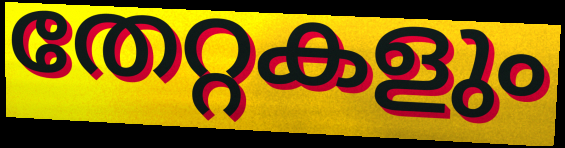
തേറ്റകളും